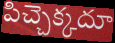
పిచ్చెక్కదూ